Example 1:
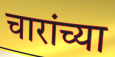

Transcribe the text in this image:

चारांच्या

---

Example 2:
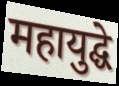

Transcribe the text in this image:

महायुद्घे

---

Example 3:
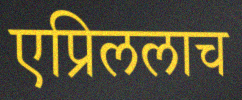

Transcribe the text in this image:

एप्रिललाच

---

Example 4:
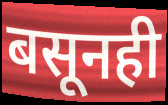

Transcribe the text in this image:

बसूनही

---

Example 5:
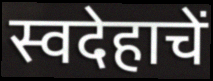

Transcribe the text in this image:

स्वदेहाचें